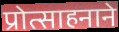
प्रोत्साहनाने